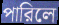
পারিলে